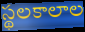
స్థలకాలాల